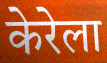
केरेला